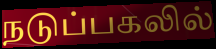
நடுப்பகலில்